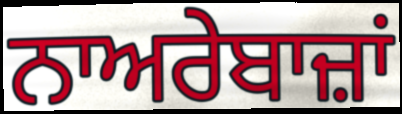
ਨਾਅਰੇਬਾਜ਼ਾਂ